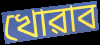
খোৱাব